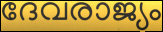
ദേവരാജ്യം